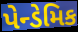
પેન્ડેમિક